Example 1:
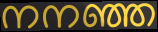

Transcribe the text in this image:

നനഞ്ഞ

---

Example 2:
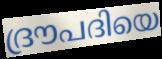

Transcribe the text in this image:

ദ്രൗപദിയെ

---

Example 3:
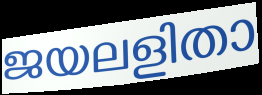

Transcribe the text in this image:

ജയലളിതാ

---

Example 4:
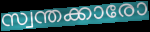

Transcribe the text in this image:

സ്വന്തക്കാരോ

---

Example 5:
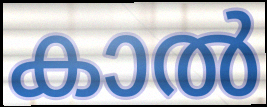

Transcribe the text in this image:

കാൽ